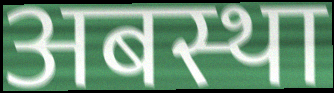
अबस्था